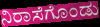
ನಿರಾಸೆಗೊಂಡು